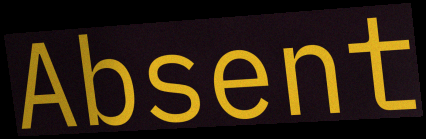
Absent